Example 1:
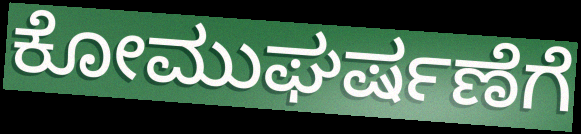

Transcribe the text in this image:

ಕೋಮುಘರ್ಷಣೆಗೆ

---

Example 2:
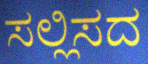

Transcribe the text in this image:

ಸಲ್ಲಿಸದ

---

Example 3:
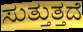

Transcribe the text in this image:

ಸುತ್ತುತ್ತದೆ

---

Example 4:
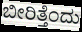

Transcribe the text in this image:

ಬೀರಿತ್ತೆಂದು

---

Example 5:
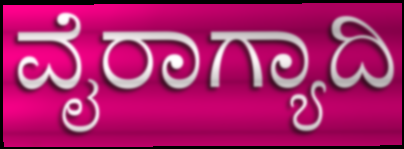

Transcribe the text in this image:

ವೈರಾಗ್ಯಾದಿ